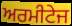
ਅਰਮੀਟੇਜ